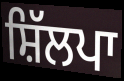
ਸ਼ਿੱਲਪਾ